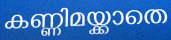
കണ്ണിമയ്ക്കാതെ